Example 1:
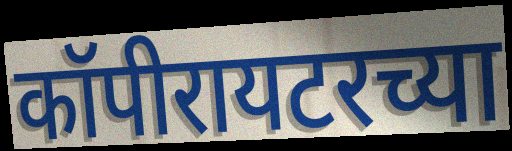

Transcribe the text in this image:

कॉपीरायटरच्या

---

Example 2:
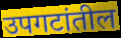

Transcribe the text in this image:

उपगटांतील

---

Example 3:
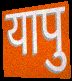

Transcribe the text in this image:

यापु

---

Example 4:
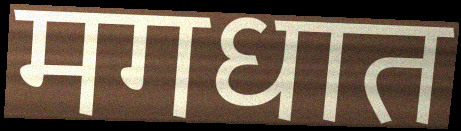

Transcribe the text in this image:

मगधात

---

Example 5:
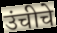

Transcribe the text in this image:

उंचीचे